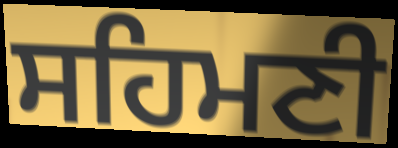
ਸਹਿਮਣੀ